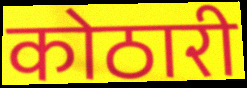
कोठारी